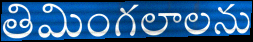
తిమింగలాలను